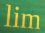
lim